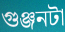
গুঞ্জনটা